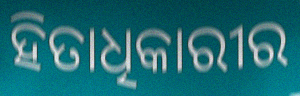
ହିତାଧିକାରୀର